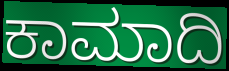
ಕಾಮಾದಿ